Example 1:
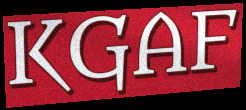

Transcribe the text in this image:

KGAF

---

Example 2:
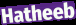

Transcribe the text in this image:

Hatheeb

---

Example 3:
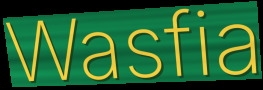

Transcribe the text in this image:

Wasfia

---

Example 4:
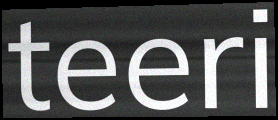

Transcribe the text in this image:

teeri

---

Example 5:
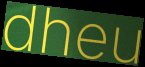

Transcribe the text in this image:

dheu